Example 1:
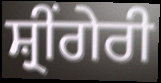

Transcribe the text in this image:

ਸ਼੍ਰੀਂਗੇਰੀ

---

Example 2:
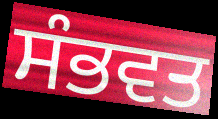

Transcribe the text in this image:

ਸੰਭਵਤ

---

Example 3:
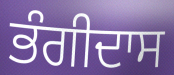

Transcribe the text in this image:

ਭੰਗੀਦਾਸ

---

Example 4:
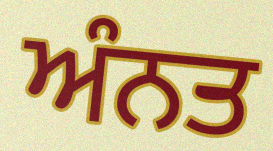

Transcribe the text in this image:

ਅੰਨਤ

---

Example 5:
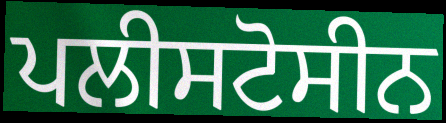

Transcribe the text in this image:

ਪਲੀਸਟੋਸੀਨ